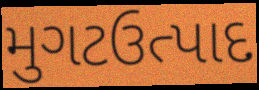
મુગટઉત્પાદ